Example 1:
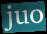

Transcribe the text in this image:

juo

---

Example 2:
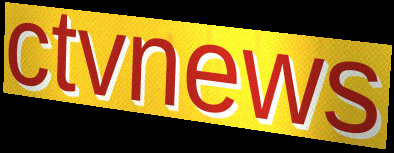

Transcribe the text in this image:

ctvnews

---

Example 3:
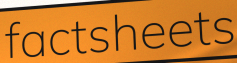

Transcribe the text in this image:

factsheets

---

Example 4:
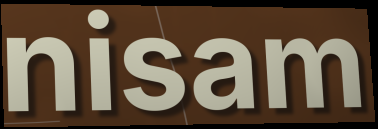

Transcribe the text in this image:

nisam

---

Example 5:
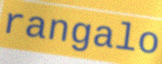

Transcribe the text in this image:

rangalo